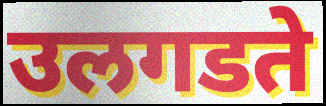
उलगडते